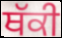
ਥੱਕੀ